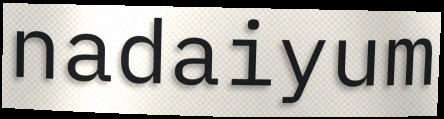
nadaiyum